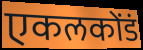
एकलकोंडं